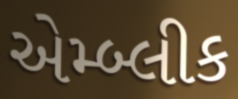
એમ્બ્લીક